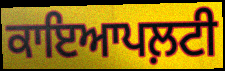
ਕਾਇਆਪਲ਼ਟੀ